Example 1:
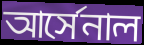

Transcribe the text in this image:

আর্সেনাল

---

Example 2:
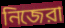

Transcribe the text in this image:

নিজেরা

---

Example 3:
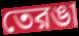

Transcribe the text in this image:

তেরঙা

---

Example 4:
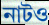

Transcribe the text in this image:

নাটও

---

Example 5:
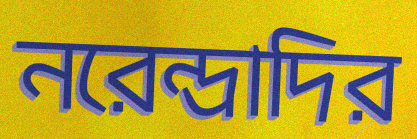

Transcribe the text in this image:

নরেন্দ্রাদির